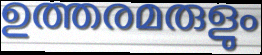
ഉത്തരമരുളും